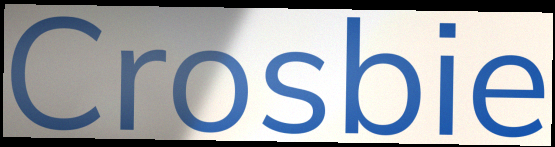
Crosbie